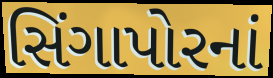
સિંગાપોરનાં